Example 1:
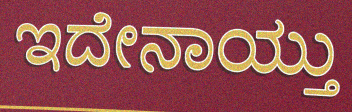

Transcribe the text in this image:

ಇದೇನಾಯ್ತು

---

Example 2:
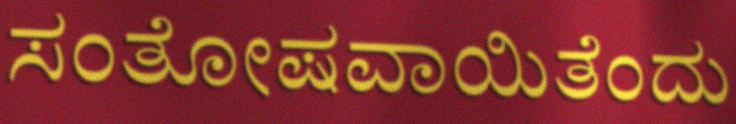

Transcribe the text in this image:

ಸಂತೋಷವಾಯಿತೆಂದು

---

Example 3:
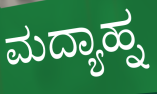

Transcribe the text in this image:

ಮದ್ಯಾಹ್ನ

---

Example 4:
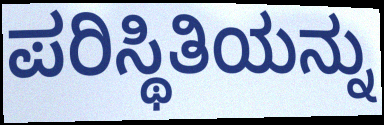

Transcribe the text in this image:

ಪರಿಸ್ಥಿತಿಯನ್ನು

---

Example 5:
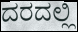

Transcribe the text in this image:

ದರದಲ್ಲಿ